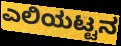
ಎಲಿಯಟ್ಟನ